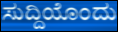
ಸುದ್ದಿಯೊಂದು